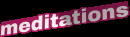
meditations